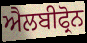
ਐਲਬੀਫ੍ਰੋਨ